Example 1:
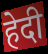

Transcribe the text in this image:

हेदी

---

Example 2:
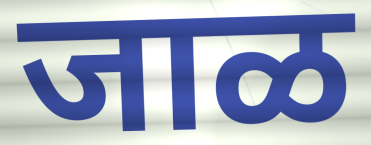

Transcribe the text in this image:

जाळ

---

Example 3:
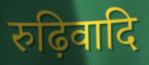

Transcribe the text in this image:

रुढ़िवादि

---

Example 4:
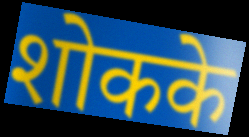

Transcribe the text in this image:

शोकके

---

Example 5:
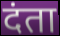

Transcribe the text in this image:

दंता